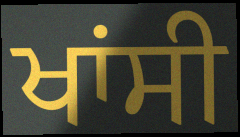
ਖਾਂਸੀ